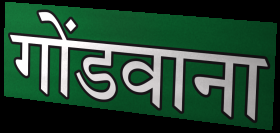
गोंडवाना